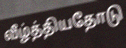
வீழ்த்தியதோடு